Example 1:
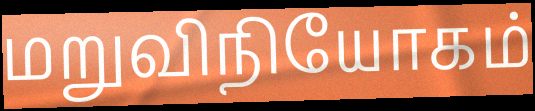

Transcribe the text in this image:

மறுவிநியோகம்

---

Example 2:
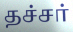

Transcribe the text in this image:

தச்சர்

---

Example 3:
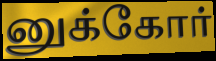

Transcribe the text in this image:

னுக்கோர்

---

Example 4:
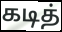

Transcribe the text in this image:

கடித்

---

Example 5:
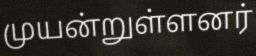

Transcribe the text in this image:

முயன்றுள்ளனர்